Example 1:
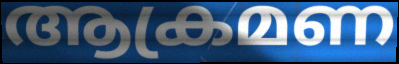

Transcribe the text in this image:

ആക്രമണ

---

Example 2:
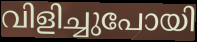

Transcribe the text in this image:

വിളിച്ചുപോയി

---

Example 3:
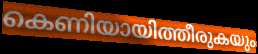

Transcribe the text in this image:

കെണിയായിത്തീരുകയും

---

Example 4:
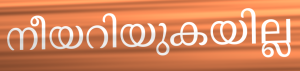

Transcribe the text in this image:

നീയറിയുകയില്ല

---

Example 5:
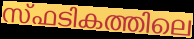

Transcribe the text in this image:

സ്ഫടികത്തിലെ